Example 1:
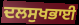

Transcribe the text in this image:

ਦਲਸੁਖਭਾਈ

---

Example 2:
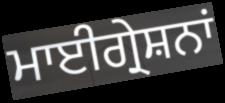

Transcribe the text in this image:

ਮਾਈਗ੍ਰੇਸ਼ਨਾਂ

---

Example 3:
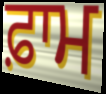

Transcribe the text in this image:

ਫ਼ਾਮ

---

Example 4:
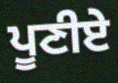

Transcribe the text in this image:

ਪੂਣੀਏ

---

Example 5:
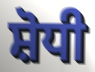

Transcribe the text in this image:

ਸ਼ੋਧੀ